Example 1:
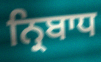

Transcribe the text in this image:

ਨ੍ਰਿਬਾਧ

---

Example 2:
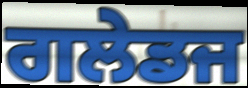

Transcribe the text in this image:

ਗਲੇਡਜ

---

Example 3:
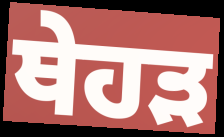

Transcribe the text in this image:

ਥੇਹੜ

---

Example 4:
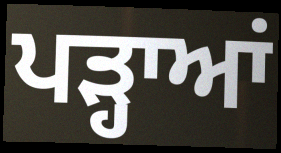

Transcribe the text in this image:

ਪੜ੍ਹਾਆਂ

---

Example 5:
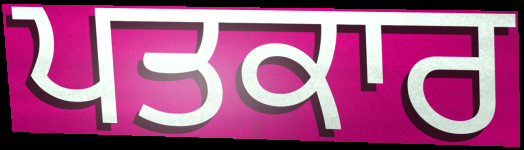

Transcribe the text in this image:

ਪਤਕਾਰ